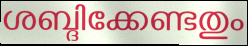
ശബ്ദിക്കേണ്ടതും